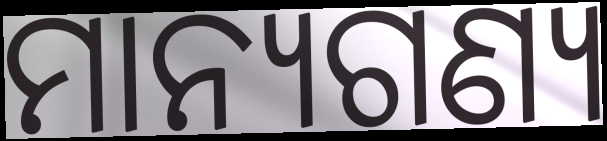
ମାନ୍ୟଗଣ୍ୟ